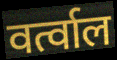
वर्त्वाल